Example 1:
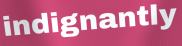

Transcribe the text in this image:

indignantly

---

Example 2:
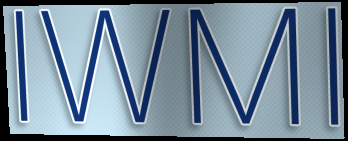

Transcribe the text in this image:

IWMI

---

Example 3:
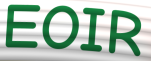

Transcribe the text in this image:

EOIR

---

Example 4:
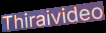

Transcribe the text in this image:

Thiraivideo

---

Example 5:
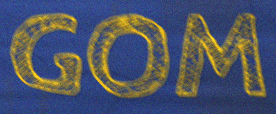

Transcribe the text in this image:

GOM